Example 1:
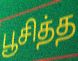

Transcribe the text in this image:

பூசித்த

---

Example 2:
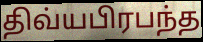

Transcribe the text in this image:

திவ்யபிரபந்த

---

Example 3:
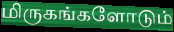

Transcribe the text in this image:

மிருகங்களோடும்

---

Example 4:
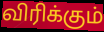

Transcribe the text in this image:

விரிக்கும்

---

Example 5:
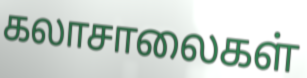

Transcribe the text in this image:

கலாசாலைகள்